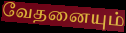
வேதனையும்